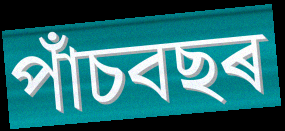
পাঁচবছৰ